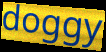
doggy